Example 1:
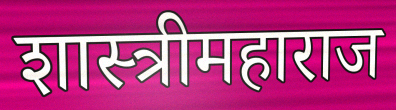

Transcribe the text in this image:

शास्त्रीमहाराज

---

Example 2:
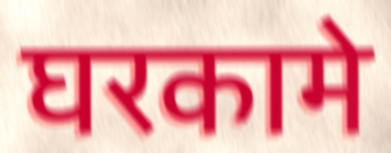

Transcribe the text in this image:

घरकामे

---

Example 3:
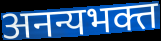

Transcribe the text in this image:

अनन्यभक्त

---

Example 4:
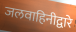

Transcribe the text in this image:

जलवाहिनीद्वारे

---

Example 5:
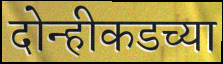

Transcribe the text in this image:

दोन्हीकडच्या